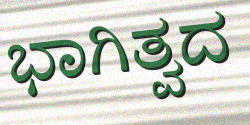
ಭಾಗಿತ್ವದ